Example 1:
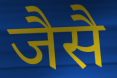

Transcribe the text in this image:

जैसै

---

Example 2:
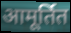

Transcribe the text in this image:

आमूर्तित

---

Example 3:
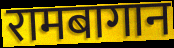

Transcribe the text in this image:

रामबागान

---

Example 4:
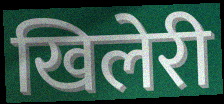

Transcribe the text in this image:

खिलेरी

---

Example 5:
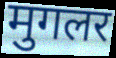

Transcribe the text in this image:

मुगलर